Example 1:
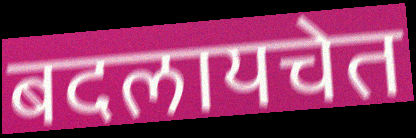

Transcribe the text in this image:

बदलायचेत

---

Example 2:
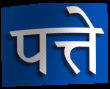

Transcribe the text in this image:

पत्ते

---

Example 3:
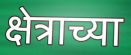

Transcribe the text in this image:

क्षेत्राच्या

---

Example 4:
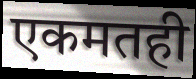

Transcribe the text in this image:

एकमतही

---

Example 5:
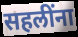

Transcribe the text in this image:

सहलींना